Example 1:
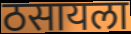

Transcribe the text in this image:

ठसायला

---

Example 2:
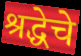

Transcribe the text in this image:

श्रद्धेचे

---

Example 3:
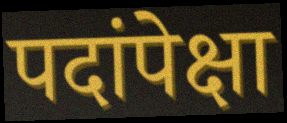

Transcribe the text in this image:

पदांपेक्षा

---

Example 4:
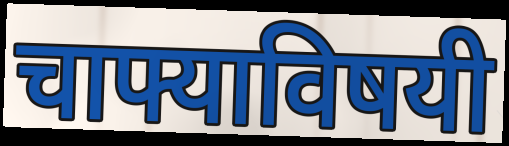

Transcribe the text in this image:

चाफ्याविषयी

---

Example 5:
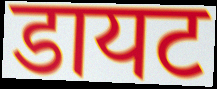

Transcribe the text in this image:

डायट